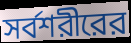
সর্বশরীরের